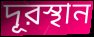
দূরস্থান